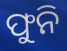
ଫୁନି